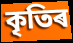
কৃতিৰ